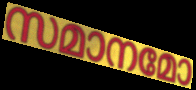
സമാനമോ